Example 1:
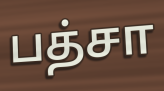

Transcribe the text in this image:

பத்சா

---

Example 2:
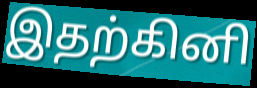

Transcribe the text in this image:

இதற்கினி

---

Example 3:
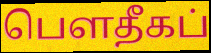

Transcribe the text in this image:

பௌதீகப்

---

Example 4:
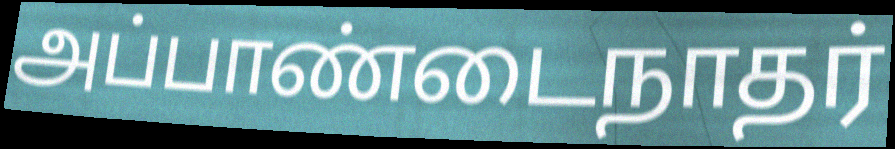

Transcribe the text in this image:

அப்பாண்டைநாதர்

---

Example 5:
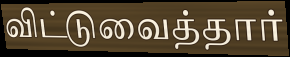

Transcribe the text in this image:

விட்டுவைத்தார்